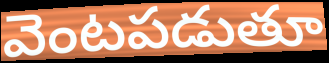
వెంటపడుతూ